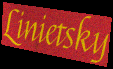
Linietsky